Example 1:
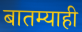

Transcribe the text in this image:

बातम्याही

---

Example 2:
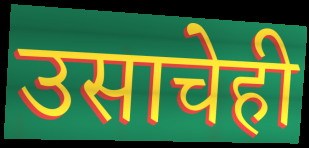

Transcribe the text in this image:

उसाचेही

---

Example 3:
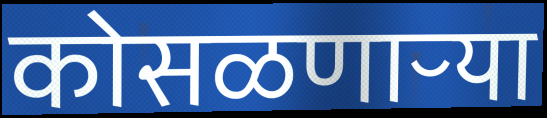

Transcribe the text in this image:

कोसळणाऱ्या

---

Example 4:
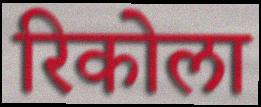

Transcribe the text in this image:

रिकोला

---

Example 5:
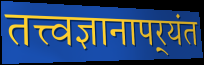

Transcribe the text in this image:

तत्त्वज्ञानापर्यंत